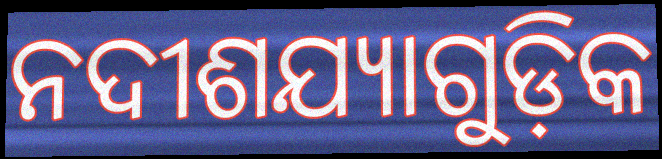
ନଦୀଶଯ୍ୟାଗୁଡ଼ିକ